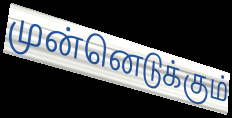
முன்னெடுக்கும்